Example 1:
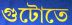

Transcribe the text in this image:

গুটোতে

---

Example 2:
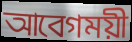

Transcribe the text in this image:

আবেগময়ী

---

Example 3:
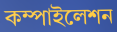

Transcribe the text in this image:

কম্পাইলেশন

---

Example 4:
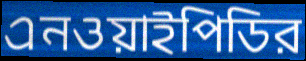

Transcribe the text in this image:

এনওয়াইপিডির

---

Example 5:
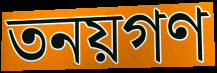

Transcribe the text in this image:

তনয়গণ